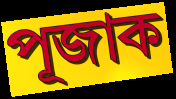
পূজাক